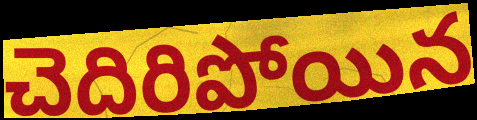
చెదిరిపోయిన